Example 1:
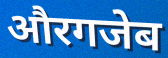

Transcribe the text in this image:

औरगजेब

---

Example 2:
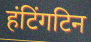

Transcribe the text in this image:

हंटिंगटिन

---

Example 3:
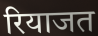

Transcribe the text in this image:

रियाजत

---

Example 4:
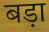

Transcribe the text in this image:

बड़ा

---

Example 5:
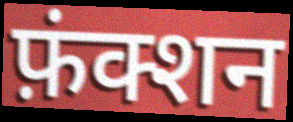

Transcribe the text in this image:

फ़ंक्शन